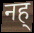
नह्